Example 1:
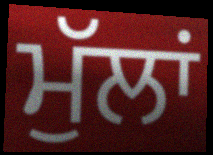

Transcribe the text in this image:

ਮੁੱਲਾਂ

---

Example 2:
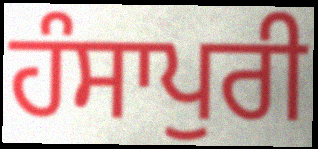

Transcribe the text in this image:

ਹੰਸਾਪੁਰੀ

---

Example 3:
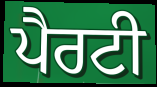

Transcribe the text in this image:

ਪੈਰਟੀ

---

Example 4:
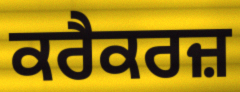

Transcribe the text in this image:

ਕਰੈਕਰਜ਼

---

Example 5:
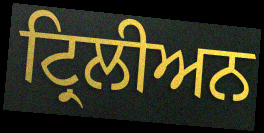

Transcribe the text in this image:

ਟ੍ਰਿਲੀਅਨ